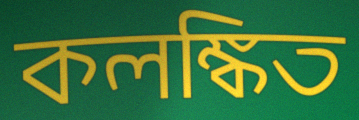
কলঙ্কিত